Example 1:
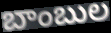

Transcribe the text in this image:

బాంబుల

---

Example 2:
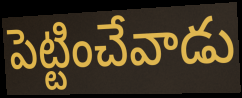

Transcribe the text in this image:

పెట్టించేవాడు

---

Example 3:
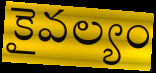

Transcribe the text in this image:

కైవల్యం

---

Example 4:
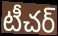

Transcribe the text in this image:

టీచర్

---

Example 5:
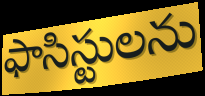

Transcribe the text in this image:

ఫాసిస్టులను